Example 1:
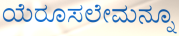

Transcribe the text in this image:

ಯೆರೂಸಲೇಮನ್ನೂ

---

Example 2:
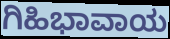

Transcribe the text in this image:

ಗಿಹಿಭಾವಾಯ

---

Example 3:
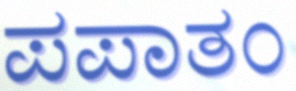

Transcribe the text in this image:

ಪಪಾತಂ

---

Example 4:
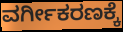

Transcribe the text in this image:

ವರ್ಗೀಕರಣಕ್ಕೆ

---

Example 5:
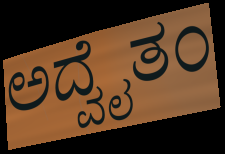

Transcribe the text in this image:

ಅದ್ವೈತಂ